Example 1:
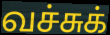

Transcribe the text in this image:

வச்சுக்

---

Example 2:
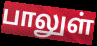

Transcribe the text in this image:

பாலுள்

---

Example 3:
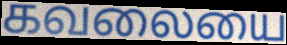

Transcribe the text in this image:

கவலையை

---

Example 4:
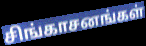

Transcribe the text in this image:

சிங்காசனங்கள்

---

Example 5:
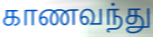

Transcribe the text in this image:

காணவந்து